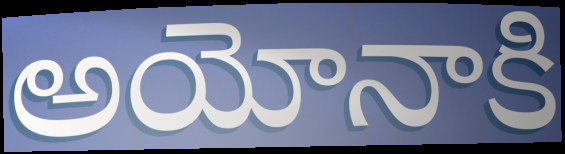
అయోనాకి